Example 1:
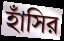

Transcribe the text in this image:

হাঁসির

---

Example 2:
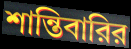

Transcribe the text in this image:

শান্তিবারির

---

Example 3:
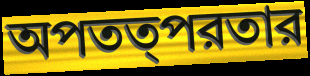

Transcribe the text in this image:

অপতত্পরতার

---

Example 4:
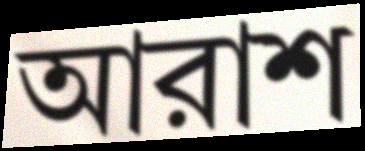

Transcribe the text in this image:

আরাশ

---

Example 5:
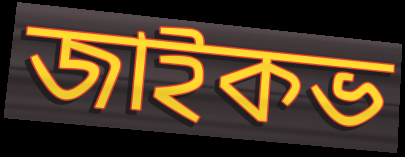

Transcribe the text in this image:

জাইকভ